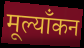
मूल्याँकन